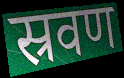
स्रवण